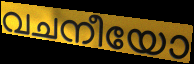
വചനീയോ